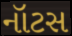
નૉટસ